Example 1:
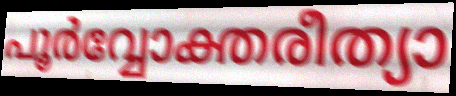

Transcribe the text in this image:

പൂർവ്വോക്തരീത്യാ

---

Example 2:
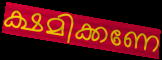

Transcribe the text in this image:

ക്ഷമിക്കണേ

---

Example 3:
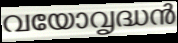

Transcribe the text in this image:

വയോവൃദ്ധൻ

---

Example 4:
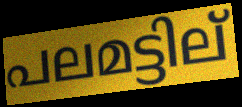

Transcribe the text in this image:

പലമട്ടില്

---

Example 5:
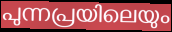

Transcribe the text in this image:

പുന്നപ്രയിലെയും